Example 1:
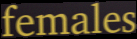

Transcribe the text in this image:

females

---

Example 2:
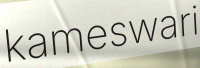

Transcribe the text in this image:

kameswari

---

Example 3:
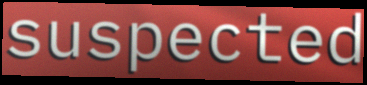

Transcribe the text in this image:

suspected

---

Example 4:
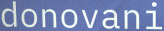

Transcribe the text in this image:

donovani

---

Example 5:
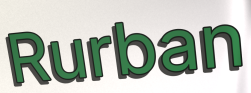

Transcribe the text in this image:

Rurban